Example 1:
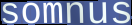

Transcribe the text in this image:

somnus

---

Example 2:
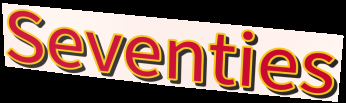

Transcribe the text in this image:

Seventies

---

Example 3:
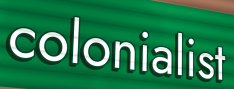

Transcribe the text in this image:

colonialist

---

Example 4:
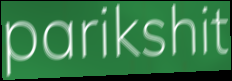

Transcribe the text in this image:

parikshit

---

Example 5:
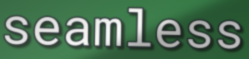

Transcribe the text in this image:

seamless